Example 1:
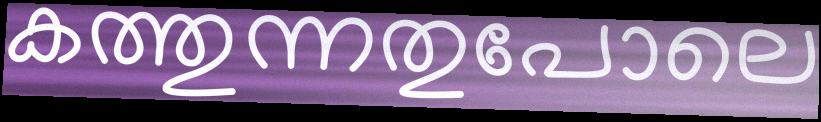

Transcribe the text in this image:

കത്തുന്നതുപോലെ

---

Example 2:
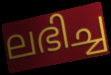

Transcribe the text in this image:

ലഭിച്ച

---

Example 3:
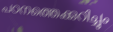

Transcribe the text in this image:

പഠനത്തെക്കുറിച്ചും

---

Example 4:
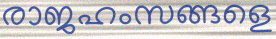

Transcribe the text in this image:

രാജഹംസങ്ങളെ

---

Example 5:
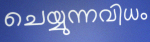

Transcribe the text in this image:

ചെയ്യുന്നവിധം